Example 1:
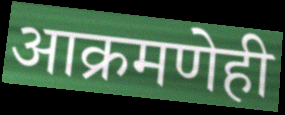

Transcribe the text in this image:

आक्रमणेही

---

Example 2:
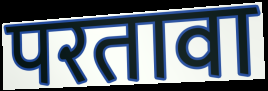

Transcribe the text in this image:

परतावा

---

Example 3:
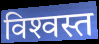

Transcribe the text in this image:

विश्‍वस्त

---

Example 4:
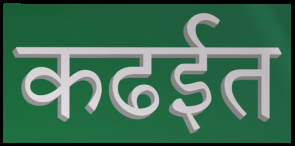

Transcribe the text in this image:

कढईत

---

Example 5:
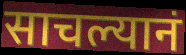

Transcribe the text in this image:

साचल्यानं